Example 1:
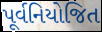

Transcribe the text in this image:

પૂર્વનિયોજિત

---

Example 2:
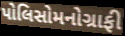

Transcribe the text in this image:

પોલિસોમનોગ્રાફી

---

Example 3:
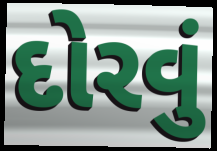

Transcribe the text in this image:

દોરવું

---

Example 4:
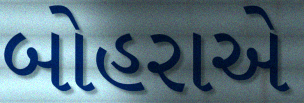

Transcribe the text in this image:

બોહરાએ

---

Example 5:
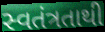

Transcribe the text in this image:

સ્વતંત્રતાથી